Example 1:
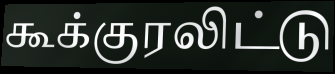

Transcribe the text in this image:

கூக்குரலிட்டு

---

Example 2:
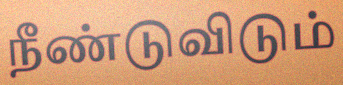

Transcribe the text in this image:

நீண்டுவிடும்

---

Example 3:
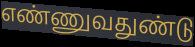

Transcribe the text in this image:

எண்ணுவதுண்டு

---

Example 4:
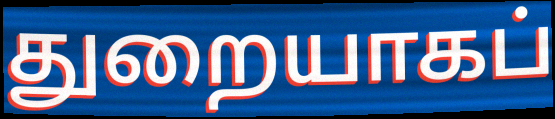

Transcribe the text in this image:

துறையாகப்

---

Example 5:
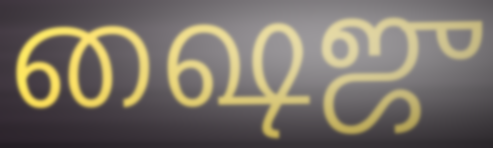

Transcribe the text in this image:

ஷைஜு